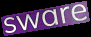
sware